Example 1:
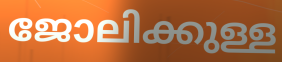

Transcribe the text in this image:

ജോലിക്കുള്ള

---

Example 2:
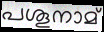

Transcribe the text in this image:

പശൂനാമ്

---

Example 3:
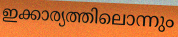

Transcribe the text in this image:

ഇക്കാര്യത്തിലൊന്നും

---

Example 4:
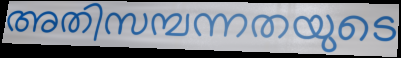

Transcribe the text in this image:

അതിസമ്പന്നതയുടെ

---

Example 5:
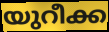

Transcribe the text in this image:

യുറീക്ക